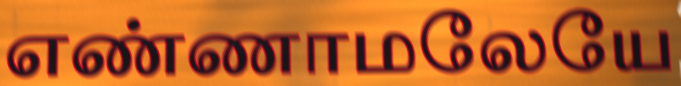
எண்ணாமலேயே